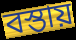
বস্তায়